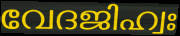
വേദജിഹ്വഃ